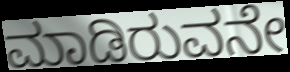
ಮಾಡಿರುವನೇ